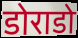
डोराडो